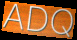
ADQ